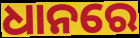
ଧାନରେ